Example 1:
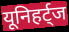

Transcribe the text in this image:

यूनिहर्ट्ज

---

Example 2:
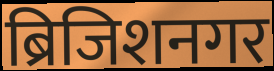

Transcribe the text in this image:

ब्रिजिशनगर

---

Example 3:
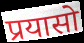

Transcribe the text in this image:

प्रयासो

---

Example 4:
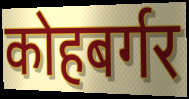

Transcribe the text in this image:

कोहबर्गर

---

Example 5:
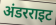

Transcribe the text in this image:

अंडरराइट